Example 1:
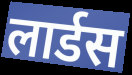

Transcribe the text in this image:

लार्डस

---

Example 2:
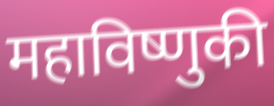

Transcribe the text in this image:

महाविष्णुकी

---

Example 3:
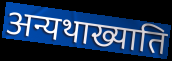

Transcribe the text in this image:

अन्यथाख्याति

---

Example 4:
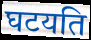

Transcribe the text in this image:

घटयति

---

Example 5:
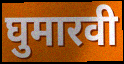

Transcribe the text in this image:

घुमारवी